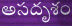
అసదృశం